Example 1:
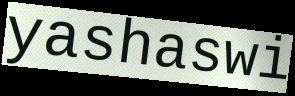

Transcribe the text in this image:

yashaswi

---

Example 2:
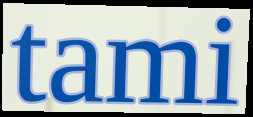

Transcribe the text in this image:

tami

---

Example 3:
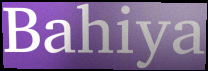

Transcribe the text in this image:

Bahiya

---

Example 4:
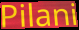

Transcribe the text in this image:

Pilani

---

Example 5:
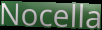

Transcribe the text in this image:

Nocella